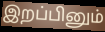
இறப்பினும்